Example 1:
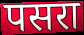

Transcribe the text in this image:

पसरा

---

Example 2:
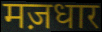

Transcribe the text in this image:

मज़धार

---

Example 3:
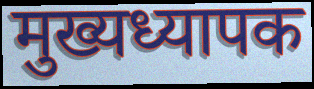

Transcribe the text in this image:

मुख्यध्यापक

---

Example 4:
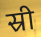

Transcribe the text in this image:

स्री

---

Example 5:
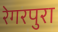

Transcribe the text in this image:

रेगरपुरा